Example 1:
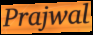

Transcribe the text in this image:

Prajwal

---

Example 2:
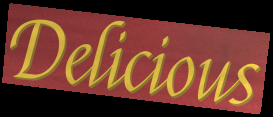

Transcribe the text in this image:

Delicious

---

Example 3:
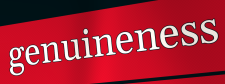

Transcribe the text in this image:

genuineness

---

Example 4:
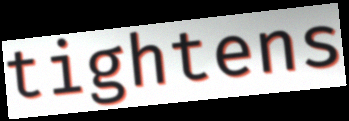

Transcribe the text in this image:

tightens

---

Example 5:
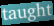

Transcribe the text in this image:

taught